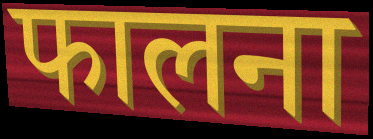
फालना